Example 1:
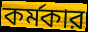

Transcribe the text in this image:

কর্মকার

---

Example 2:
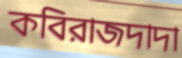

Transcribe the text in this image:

কবিরাজদাদা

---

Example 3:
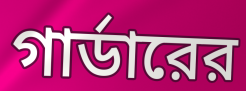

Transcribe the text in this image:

গার্ডারের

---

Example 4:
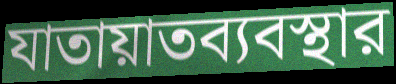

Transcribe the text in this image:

যাতায়াতব্যবস্থার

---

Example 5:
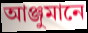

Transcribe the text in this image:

আঞ্জুমানে